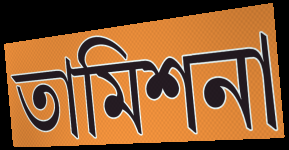
তামিশনা